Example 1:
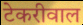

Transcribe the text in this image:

टेकरीवाल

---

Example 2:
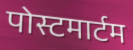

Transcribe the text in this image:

पोस्टमार्टम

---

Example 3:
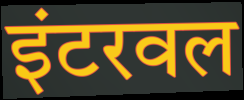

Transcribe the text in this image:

इंटरवल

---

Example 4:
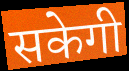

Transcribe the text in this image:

सकेगी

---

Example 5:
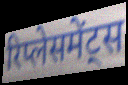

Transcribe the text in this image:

रिप्लेसमेंट्स